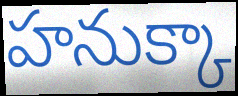
హనుక్కా